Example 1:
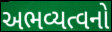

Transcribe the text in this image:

અભવ્યત્વનો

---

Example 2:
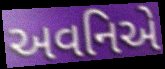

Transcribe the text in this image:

અવનિએ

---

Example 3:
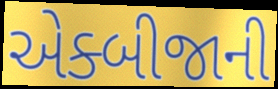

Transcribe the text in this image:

એક્બીજાની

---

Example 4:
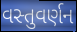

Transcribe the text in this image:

વસ્તુવર્ણન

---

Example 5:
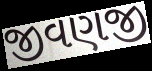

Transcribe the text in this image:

જીવણજી